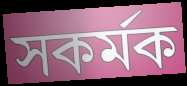
সকর্মক